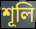
শূলি